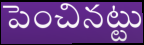
పెంచినట్టు